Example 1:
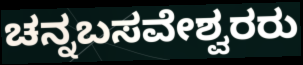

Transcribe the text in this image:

ಚನ್ನಬಸವೇಶ್ವರರು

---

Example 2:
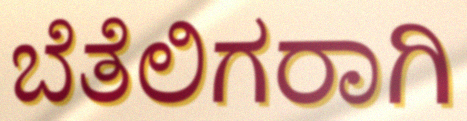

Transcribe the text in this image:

ಬೆತೆಲಿಗರಾಗಿ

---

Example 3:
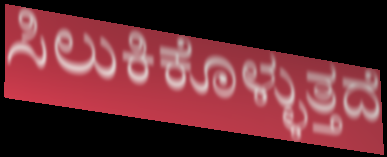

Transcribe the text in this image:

ಸಿಲುಕಿಕೊಳ್ಳುತ್ತದೆ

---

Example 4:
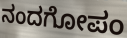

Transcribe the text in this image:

ನಂದಗೋಪಂ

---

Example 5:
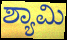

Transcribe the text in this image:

ಶ್ಯಾಮಿ